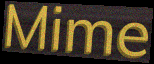
Mime